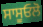
ਸਾਸੂਓਲੋ